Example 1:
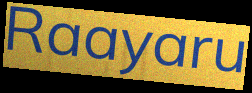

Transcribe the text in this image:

Raayaru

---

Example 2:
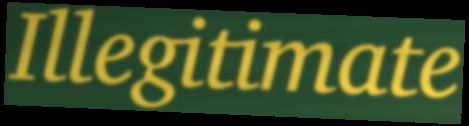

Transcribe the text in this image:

Illegitimate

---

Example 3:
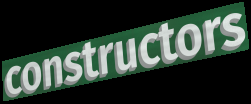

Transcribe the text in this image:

constructors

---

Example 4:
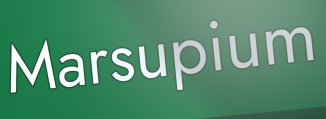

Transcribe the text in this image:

Marsupium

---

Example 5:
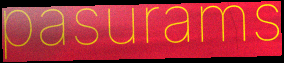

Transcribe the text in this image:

pasurams